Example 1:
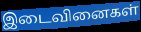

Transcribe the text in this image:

இடைவினைகள்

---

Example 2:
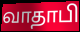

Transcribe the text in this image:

வாதாபி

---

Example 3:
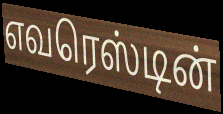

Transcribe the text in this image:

எவரெஸ்டின்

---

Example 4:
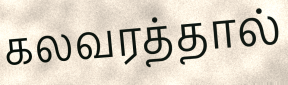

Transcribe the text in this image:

கலவரத்தால்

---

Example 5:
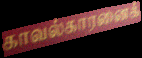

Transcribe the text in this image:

காவல்காரனைக்